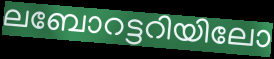
ലബോറട്ടറിയിലോ